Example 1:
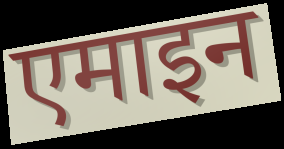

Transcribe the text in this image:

एमाइन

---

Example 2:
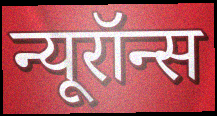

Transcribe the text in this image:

न्यूरॉन्स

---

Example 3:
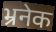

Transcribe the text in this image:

भ्रनेक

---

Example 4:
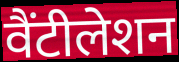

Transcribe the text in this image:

वैंटीलेशन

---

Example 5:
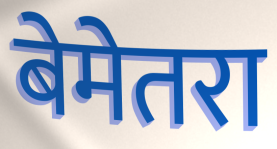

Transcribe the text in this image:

बेमेतरा